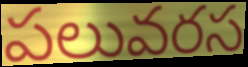
పలువరస